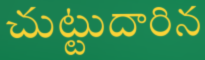
చుట్టుదారిన